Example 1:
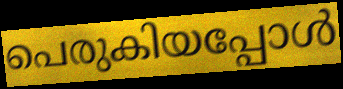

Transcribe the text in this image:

പെരുകിയപ്പോൾ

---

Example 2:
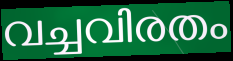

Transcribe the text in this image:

വച്ചവിരതം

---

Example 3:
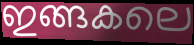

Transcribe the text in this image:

ഇങ്ങകലെ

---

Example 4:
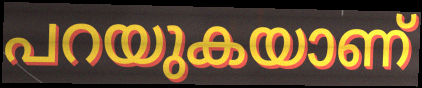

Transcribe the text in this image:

പറയുകയാണ്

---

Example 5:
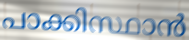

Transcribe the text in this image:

പാക്കിസ്ഥാൻ